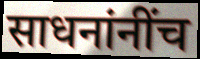
साधनांनींच